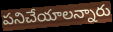
పనిచేయాలన్నారు